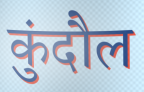
कुंदौल